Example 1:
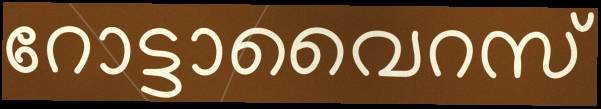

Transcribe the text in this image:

റോട്ടാവൈറസ്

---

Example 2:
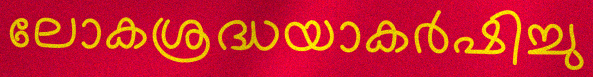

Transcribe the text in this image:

ലോകശ്രദ്ധയാകർഷിച്ചു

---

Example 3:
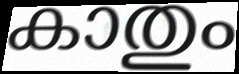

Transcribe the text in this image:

കാതും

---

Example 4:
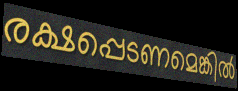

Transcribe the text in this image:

രക്ഷപ്പെടണമെങ്കിൽ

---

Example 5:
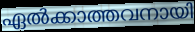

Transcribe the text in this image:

ഏൽക്കാത്തവനായി